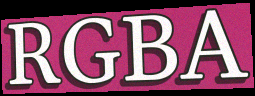
RGBA